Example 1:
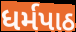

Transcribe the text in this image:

ધર્મપાઠ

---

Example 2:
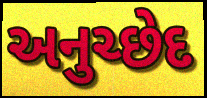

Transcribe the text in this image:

અનુચ્છેદ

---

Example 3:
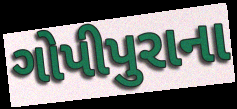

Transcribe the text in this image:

ગોપીપુરાના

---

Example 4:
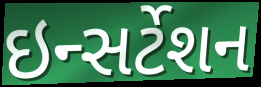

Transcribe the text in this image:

ઇન્સર્ટેશન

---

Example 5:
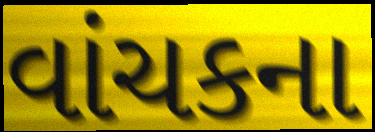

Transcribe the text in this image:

વાંચકના